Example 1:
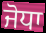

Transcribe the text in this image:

ਜੋਧਾ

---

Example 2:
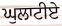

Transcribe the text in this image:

ਘੁਲਾਟੀਏ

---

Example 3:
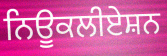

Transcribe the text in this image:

ਨਿਊਕਲੀਏਸ਼ਨ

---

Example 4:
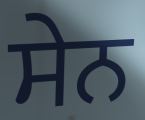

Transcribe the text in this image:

ਸੇਨ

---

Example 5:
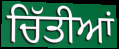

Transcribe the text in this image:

ਚਿੱਤੀਆਂ